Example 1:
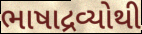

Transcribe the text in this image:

ભાષાદ્રવ્યોથી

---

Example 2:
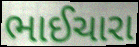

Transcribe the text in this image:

ભાઈચારા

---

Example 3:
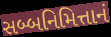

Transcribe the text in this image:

સબ્બનિમિત્તાનં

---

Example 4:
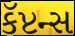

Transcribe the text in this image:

કૅપ્ટન્સ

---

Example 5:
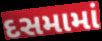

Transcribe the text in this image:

દસમામાં